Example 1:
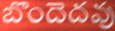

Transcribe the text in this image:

బొందెదవు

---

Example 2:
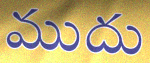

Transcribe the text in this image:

ముదు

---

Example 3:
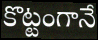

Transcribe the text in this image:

కొట్టంగానే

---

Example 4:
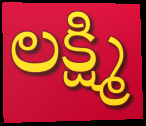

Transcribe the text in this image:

లక్ష్మి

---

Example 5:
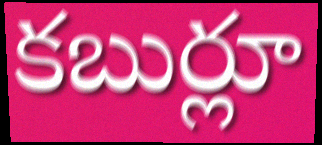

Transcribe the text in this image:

కబుర్లూ